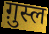
ग़ुस्ल